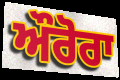
ਔਰੋਰਾ